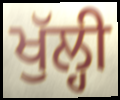
ਖੁੱਲ੍ਹੀ